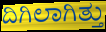
ದಿಗಿಲಾಗಿತ್ತು